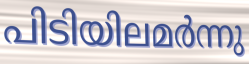
പിടിയിലമർന്നു